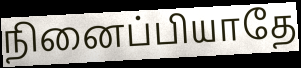
நினைப்பியாதே